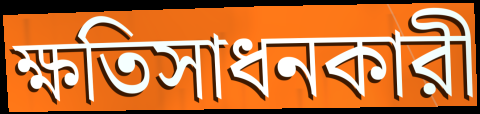
ক্ষতিসাধনকারী